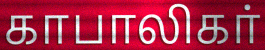
காபாலிகர்